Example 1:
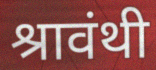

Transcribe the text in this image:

श्रावंथी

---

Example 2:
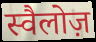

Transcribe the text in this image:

स्वैलोज़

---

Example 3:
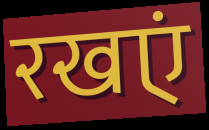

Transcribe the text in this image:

रखएं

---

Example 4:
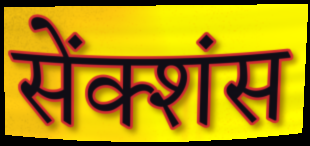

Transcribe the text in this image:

सेंक्शंस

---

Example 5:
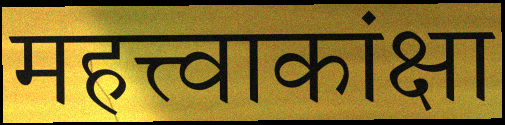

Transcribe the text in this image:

महत्त्वाकांक्षा